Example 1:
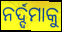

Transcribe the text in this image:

ନର୍ଦ୍ଦମାକୁ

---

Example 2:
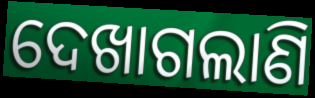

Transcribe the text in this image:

ଦେଖାଗଲାଣି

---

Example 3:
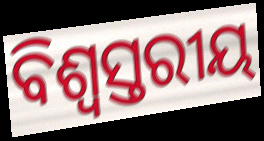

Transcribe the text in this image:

ବିଶ୍ବସ୍ତରୀୟ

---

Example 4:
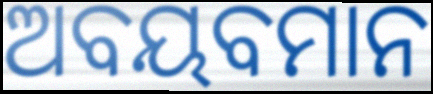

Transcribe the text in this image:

ଅବୟବମାନ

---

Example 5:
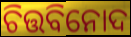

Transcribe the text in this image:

ଚିତ୍ତବିନୋଦ